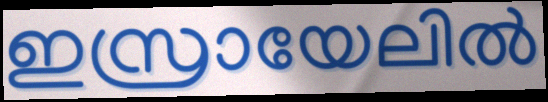
ഇസ്രായേലിൽ